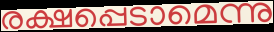
രക്ഷപ്പെടാമെന്നു